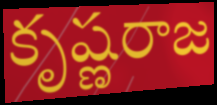
కృష్ణరాజ